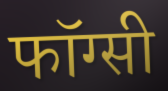
फॉग्सी